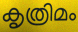
കൃത്രിമം